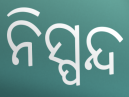
ନିସ୍ପନ୍ଦ